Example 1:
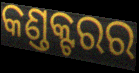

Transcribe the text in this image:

କଣ୍ଡକ୍ଟରର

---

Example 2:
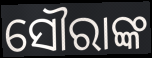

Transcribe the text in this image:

ସୌରାଙ୍କ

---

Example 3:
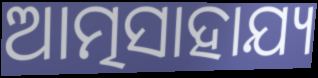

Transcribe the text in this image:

ଆତ୍ମସାହାଯ୍ୟ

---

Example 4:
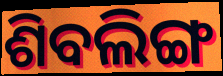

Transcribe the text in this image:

ଶିବଲିଙ୍ଗ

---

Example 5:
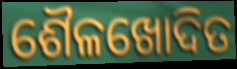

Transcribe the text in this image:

ଶୈଳଖୋଦିତ